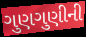
ગુણગુણીની